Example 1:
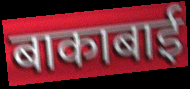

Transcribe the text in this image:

बाकाबाई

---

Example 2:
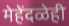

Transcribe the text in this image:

मेहेंदळेही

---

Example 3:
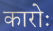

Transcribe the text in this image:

कारोः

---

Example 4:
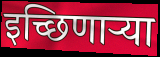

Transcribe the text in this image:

इच्छिणार्‍या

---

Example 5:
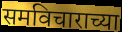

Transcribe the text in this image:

समविचाराच्या